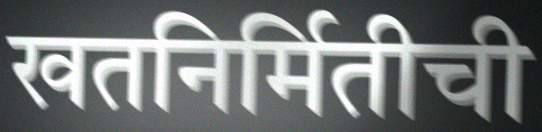
खतनिर्मितीची